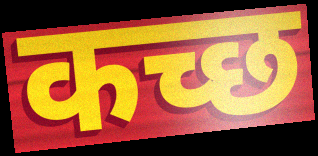
कच्छ